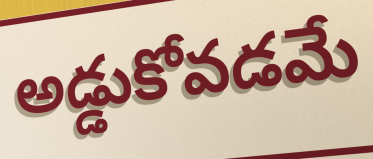
అడ్డుకోవడమే